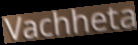
Vachheta